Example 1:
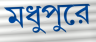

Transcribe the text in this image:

মধুপুরে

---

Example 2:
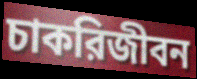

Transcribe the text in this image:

চাকরিজীবন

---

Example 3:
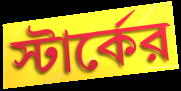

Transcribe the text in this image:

স্টার্কের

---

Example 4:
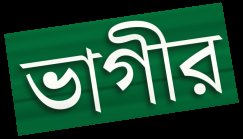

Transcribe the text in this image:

ভাগীর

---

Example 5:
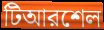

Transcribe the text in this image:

টিআরশেল